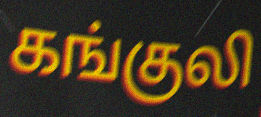
கங்குலி